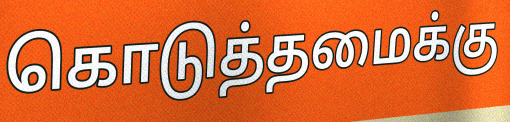
கொடுத்தமைக்கு